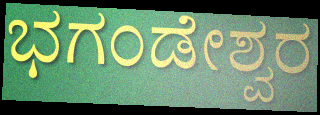
ಭಗಂಡೇಶ್ವರ